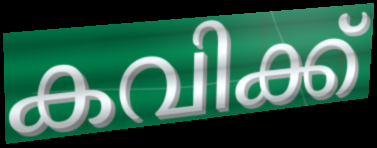
കവിക്ക്